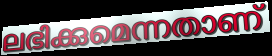
ലഭിക്കുമെന്നതാണ്